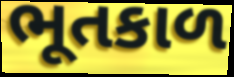
ભૂતકાળ